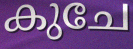
കുചേ